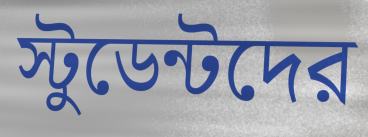
স্টুডেন্টদের